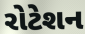
રોટેશન